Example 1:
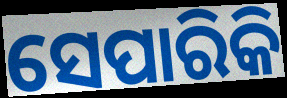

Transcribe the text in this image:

ସେପାରିକି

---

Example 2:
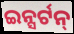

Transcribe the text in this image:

ଇନ୍ସର୍ଟନ୍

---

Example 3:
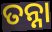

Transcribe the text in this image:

ତନ୍ନା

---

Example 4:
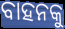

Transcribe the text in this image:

ବାହନକୁ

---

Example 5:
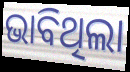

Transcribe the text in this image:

ଭାବିଥିଲା